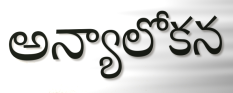
అన్యాలోకన